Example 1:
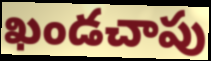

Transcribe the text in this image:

ఖండచాపు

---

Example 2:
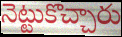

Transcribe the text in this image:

నెట్టుకొచ్చారు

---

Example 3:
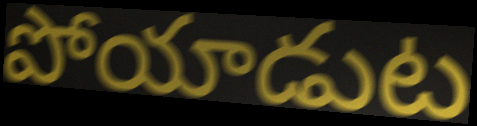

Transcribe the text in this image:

పోయాడుట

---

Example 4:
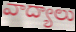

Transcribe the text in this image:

వాద్యాలు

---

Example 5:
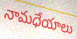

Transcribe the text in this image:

నామధేయాలు